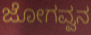
ಜೋಗವ್ವನ